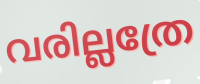
വരില്ലത്രേ